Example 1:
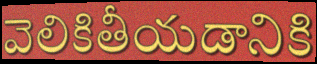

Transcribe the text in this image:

వెలికితీయడానికి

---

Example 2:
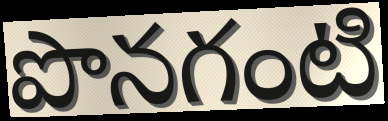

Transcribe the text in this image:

పొనగంటి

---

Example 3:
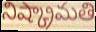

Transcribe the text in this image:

నిష్క్రామతి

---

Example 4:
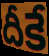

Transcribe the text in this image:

దీకే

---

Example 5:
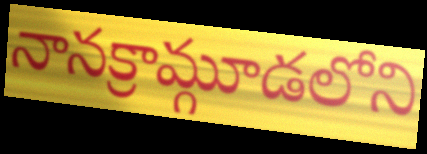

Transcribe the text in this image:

నానక్రామ్గూడలోని